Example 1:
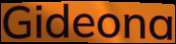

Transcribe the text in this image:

Gideona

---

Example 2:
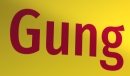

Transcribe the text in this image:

Gung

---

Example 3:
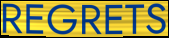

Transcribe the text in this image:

REGRETS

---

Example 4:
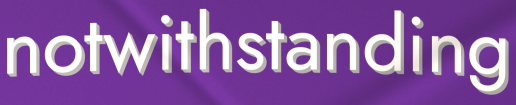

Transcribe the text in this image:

notwithstanding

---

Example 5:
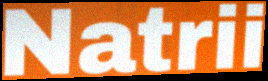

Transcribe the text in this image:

Natrii